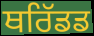
ਥਰਿੱਡਡ